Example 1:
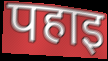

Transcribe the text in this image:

पहाइ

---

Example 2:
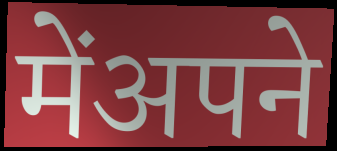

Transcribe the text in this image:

मेंअपने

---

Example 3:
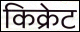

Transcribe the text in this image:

किक्रेट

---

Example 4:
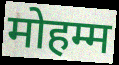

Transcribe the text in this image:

मोहम्म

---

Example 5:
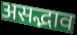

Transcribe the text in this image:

असद्भाव